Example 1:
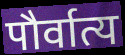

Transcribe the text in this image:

पौर्वात्य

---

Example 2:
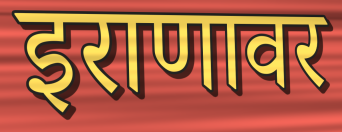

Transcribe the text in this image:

इराणावर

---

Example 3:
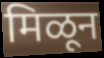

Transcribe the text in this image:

मिळून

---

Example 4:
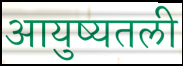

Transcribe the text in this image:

आयुष्यतली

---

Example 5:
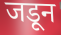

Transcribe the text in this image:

जडून